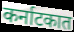
कर्नाटकात